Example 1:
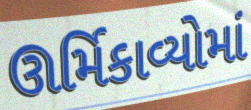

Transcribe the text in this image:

ઊર્મિકાવ્યોમાં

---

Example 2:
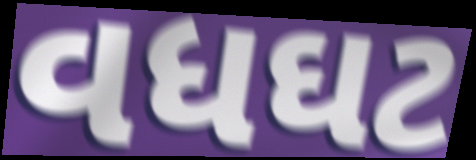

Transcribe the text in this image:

વધઘટ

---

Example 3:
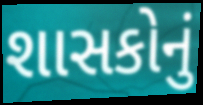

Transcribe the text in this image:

શાસકોનું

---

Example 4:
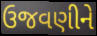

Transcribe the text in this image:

ઉજવણીને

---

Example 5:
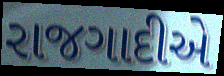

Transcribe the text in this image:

રાજગાદીએ